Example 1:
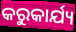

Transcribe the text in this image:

କରୁକାର୍ଯ୍ୟ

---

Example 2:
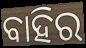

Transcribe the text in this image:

ବାହିର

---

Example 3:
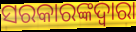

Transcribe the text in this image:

ସରକାରଙ୍କଦ୍ବାରା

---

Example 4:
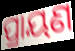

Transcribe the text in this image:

ପ୍ରାୟଣ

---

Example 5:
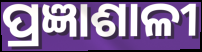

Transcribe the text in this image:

ପ୍ରଜ୍ଞାଶାଳୀ